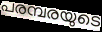
പരമ്പരയുടെ